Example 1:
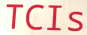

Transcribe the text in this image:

TCIs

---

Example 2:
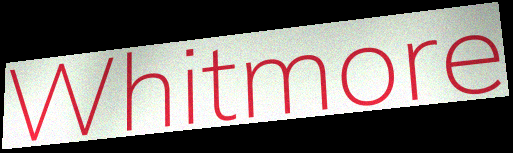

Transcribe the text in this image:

Whitmore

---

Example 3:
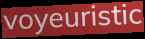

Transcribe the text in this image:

voyeuristic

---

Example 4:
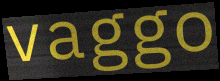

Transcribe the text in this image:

vaggo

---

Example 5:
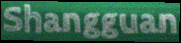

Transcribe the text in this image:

Shangguan